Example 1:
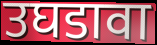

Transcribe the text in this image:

उघडावा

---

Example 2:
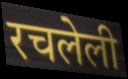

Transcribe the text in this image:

रचलेली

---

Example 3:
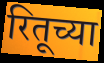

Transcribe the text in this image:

रितूच्या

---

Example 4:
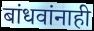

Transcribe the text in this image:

बांधवांनाही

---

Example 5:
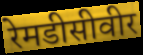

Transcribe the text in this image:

रेमडीसीवीर